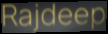
Rajdeep